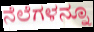
ನೆಲೆಗಳನ್ನೂ